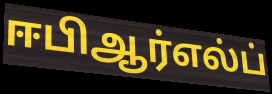
ஈபிஆர்எல்ப்